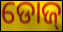
ଡୋଜ୍